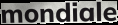
mondiale